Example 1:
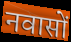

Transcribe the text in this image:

नवासों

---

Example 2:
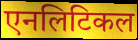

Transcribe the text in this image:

एनलिटिकल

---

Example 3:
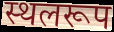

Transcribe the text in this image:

स्थलरूप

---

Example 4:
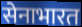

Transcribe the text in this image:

सेनाभारत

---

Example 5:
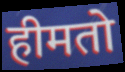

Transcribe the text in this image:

हीमतो